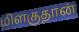
மிளகுதான்